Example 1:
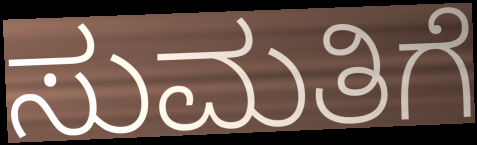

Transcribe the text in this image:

ಸುಮತಿಗೆ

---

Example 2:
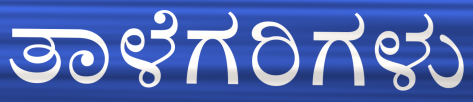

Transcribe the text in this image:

ತಾಳೆಗರಿಗಳು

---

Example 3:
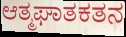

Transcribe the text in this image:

ಆತ್ಮಘಾತಕತನ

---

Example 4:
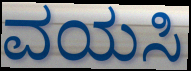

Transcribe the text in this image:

ವಯಸಿ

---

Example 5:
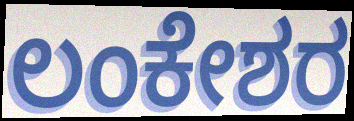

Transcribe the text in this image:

ಲಂಕೇಶರ